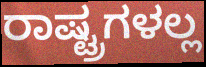
ರಾಷ್ಟ್ರಗಳಲ್ಲ